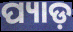
ପ୍ୟାଡ଼